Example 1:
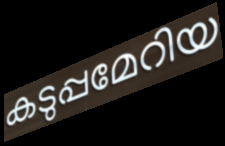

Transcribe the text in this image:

കടുപ്പമേറിയ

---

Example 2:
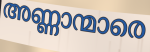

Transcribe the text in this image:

അണ്ണാന്മാരെ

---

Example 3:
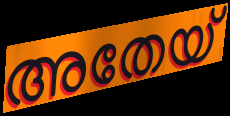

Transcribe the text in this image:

അതേയ്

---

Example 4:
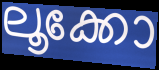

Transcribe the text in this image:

ലൂക്കോ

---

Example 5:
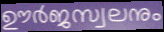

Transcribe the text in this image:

ഊർജസ്വലനും